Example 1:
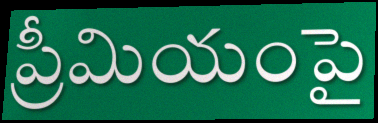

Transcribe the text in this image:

ప్రీమియంపై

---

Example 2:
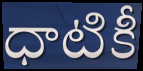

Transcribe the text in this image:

ధాటికీ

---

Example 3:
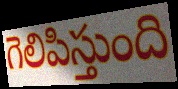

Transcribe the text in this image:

గెలిపిస్తుంది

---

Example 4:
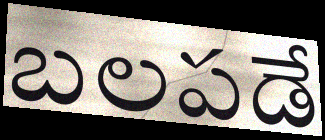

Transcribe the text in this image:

బలపడే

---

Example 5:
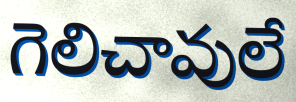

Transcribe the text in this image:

గెలిచావులే